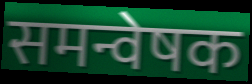
समन्वेषक